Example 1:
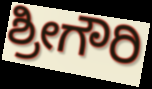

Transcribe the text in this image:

ಶ್ರೀಗೌರಿ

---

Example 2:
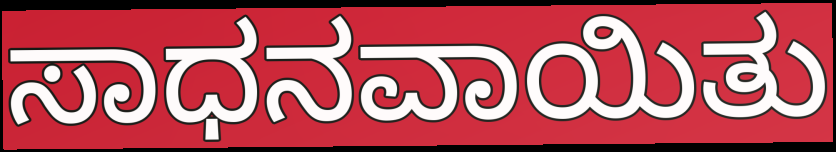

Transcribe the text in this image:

ಸಾಧನವಾಯಿತು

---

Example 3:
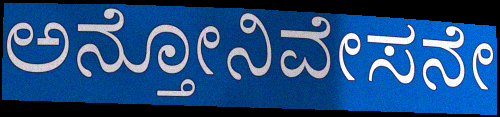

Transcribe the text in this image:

ಅನ್ತೋನಿವೇಸನೇ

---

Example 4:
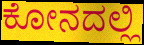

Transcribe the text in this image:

ಕೋನದಲ್ಲಿ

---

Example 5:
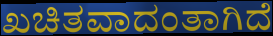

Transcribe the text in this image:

ಖಚಿತವಾದಂತಾಗಿದೆ